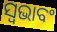
ସ୍ଵଭାବଂ